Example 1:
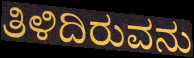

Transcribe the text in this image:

ತಿಳಿದಿರುವನು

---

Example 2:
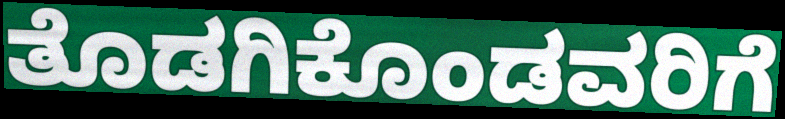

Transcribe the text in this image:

ತೊಡಗಿಕೊಂಡವರಿಗೆ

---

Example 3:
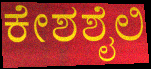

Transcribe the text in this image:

ಕೇಶಶೈಲಿ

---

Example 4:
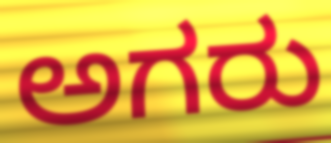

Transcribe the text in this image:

ಅಗರು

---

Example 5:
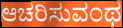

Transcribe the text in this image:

ಆಚರಿಸುವಂಥ